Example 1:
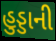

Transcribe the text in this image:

હુડ્ડાની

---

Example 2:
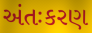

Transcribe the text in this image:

અંતઃકરણ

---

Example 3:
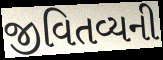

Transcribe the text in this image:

જીવિતવ્યની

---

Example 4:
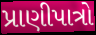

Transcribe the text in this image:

પ્રાણીપાત્રો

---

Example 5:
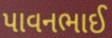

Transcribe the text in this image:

પાવનભાઈ